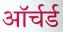
ऑर्चर्ड